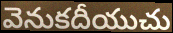
వెనుకదీయుచు